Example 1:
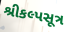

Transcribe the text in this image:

શ્રીકલ્પસૂત્ર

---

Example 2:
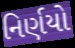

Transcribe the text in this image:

નિર્ણયો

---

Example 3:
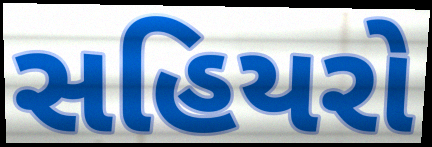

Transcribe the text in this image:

સહિયરો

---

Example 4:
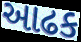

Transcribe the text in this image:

આઢક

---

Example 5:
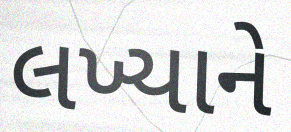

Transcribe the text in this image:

લખ્યાને